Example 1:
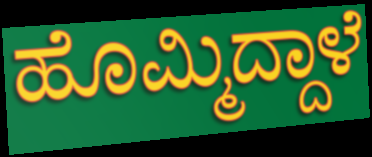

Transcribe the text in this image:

ಹೊಮ್ಮಿದ್ದಾಳೆ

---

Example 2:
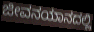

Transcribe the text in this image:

ಜೀವನಯಾನದಲ್ಲಿ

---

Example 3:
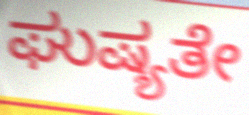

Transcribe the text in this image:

ಘುಷ್ಯತೇ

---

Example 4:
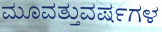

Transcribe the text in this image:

ಮೂವತ್ತುವರ್ಷಗಳ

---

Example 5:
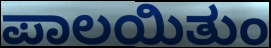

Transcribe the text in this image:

ಪಾಲಯಿತುಂ